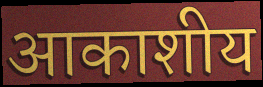
आकाशीय